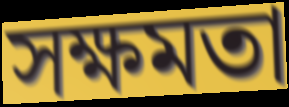
সক্ষমতা